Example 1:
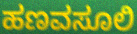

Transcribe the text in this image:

ಹಣವಸೂಲಿ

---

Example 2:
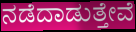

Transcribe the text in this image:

ನಡೆದಾಡುತ್ತೇವೆ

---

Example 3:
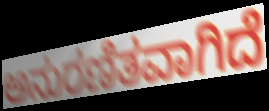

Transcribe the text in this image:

ಅನುರಣಿತವಾಗಿದೆ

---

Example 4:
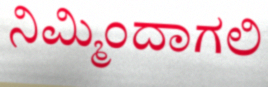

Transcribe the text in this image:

ನಿಮ್ಮಿಂದಾಗಲಿ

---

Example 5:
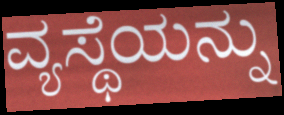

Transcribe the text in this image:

ವ್ಯಸ್ಥೆಯನ್ನು